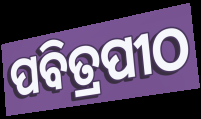
ପବିତ୍ରପୀଠ